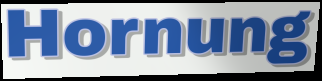
Hornung